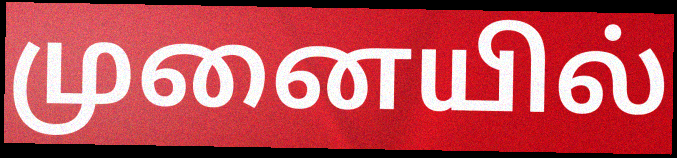
முனையில்